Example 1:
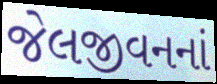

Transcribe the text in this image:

જેલજીવનનાં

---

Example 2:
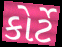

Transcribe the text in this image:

કોર્ટે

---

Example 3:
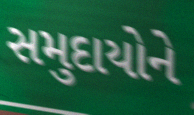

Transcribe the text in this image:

સમુદાયોને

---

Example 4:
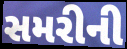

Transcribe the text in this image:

સમરીની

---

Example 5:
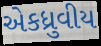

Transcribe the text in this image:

એકધ્રુવીય